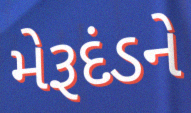
મેરૂદંડને